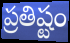
ప్రతిష్టం